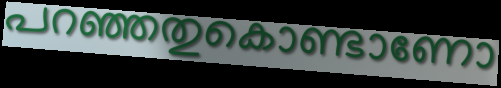
പറഞ്ഞതുകൊണ്ടാണോ